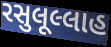
રસુલૂલ્લાહ